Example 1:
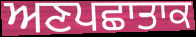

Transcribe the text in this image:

ਅਣਪਛਾਤਾਕ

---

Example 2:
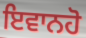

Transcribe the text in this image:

ਇਵਾਨਹੋ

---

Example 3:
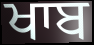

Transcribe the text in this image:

ਖਾਬ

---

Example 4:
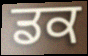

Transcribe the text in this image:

ਡਕ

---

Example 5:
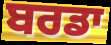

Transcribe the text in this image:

ਬਰਡਾ